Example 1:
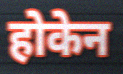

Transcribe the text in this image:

होकेन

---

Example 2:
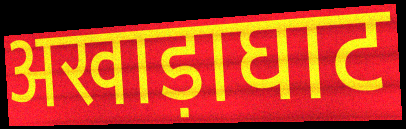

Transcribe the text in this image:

अखाड़ाघाट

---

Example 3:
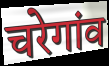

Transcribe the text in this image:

चरेगांव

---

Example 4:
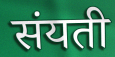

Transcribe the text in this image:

संयती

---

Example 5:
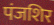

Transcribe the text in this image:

पंजशिर